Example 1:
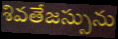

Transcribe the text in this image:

శివతేజస్సును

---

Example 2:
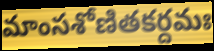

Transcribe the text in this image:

మాంసశోణితకర్దమః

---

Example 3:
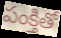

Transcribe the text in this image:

పంక్తితో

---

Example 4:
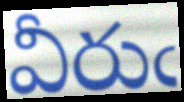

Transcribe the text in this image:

వీరుఁ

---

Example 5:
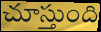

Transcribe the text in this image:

చూస్తుంది